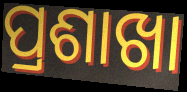
ପ୍ରଶାଖା